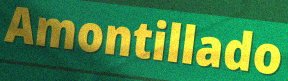
Amontillado